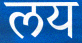
लय